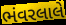
ભંવરલાલે